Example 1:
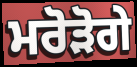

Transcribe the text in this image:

ਮਰੋੜੋਗੇ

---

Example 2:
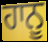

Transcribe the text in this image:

ਹਾਨੂ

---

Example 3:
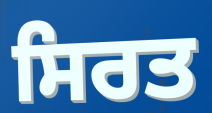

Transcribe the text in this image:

ਸਿਰਤ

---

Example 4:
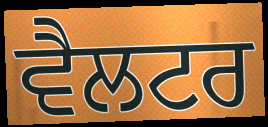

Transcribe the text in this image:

ਵੈਲਟਰ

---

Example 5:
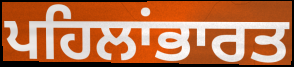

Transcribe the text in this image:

ਪਹਿਲਾਂਭਾਰਤ